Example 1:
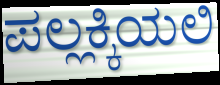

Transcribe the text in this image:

ಪಲ್ಲಕ್ಕಿಯಲಿ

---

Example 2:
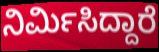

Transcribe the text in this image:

ನಿರ್ಮಿಸಿದ್ದಾರೆ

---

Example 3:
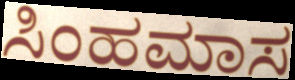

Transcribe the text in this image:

ಸಿಂಹಮಾಸ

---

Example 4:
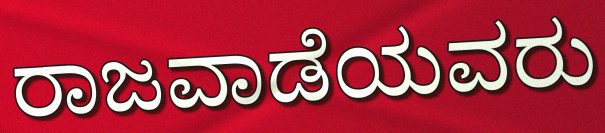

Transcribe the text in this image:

ರಾಜವಾಡೆಯವರು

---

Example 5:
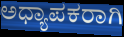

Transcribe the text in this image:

ಅಧ್ಯಾಪಕರಾಗಿ